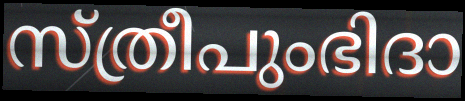
സ്ത്രീപുംഭിദാ